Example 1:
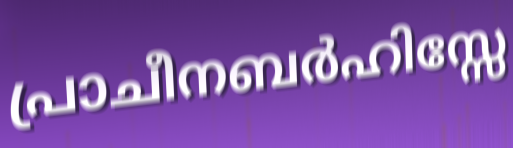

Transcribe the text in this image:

പ്രാചീനബർഹിസ്സേ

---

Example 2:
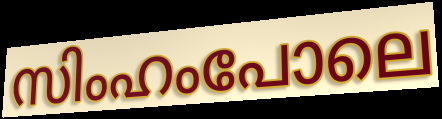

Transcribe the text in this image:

സിംഹംപോലെ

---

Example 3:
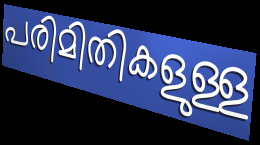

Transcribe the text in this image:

പരിമിതികളുള്ള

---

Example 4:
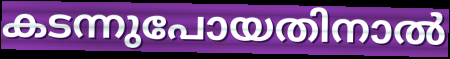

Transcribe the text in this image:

കടന്നുപോയതിനാൽ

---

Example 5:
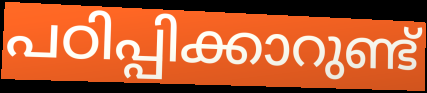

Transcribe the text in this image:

പഠിപ്പിക്കാറുണ്ട്